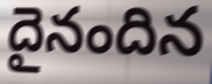
దైనందిన